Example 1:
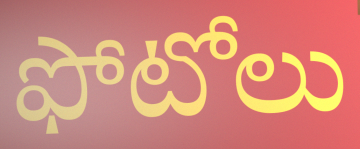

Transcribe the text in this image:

ఫోటోలు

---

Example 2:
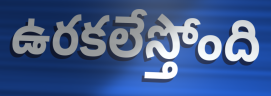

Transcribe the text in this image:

ఉరకలేస్తోంది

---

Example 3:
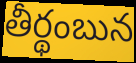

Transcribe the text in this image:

తీర్థంబున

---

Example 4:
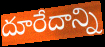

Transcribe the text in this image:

దూరేదాన్ని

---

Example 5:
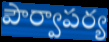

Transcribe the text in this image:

పౌర్వాపర్య